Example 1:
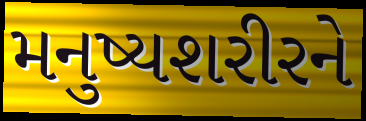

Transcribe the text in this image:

મનુષ્યશરીરને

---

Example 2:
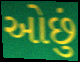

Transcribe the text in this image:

ઓછું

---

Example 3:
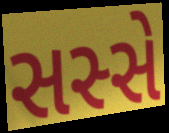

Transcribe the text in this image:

સસ્સે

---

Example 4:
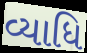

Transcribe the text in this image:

વ્યાધિ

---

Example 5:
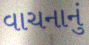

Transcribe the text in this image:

વાચનાનું